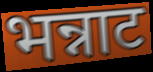
भन्नाट